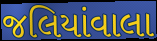
જલિયાંવાલા